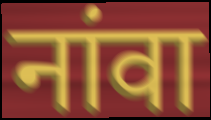
नांवा